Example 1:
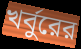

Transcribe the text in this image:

খর্বুরের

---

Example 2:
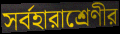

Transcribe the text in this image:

সর্বহারাশ্রেণীর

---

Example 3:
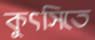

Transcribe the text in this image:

কুৎসিতে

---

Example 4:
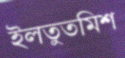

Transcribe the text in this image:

ইলতুতমিশ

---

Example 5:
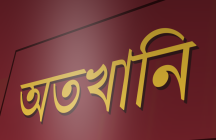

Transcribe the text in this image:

অতখানি